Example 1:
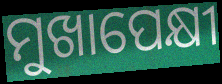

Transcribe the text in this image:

ମୁଖାପେକ୍ଷୀ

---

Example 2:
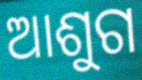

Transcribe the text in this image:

ଆଶୁଗ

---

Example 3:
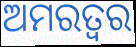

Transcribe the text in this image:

ଅମରତ୍ୱର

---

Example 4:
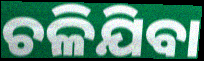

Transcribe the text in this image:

ଚଳିଯିବା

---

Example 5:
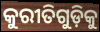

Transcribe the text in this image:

କୁରୀତିଗୁଡ଼ିକୁ